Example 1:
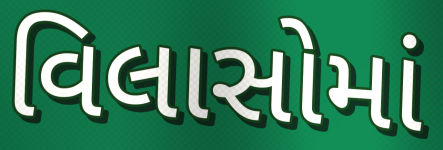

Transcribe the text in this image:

વિલાસોમાં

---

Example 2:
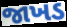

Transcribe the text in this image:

જાખડ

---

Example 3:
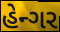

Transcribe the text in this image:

હેન્ગર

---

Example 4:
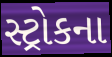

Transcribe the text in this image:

સ્ટ્રોકના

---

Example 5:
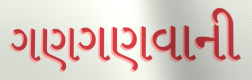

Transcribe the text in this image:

ગણગણવાની